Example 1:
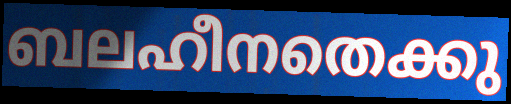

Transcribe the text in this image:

ബലഹീനതെക്കു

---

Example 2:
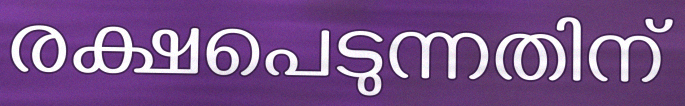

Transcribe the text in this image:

രക്ഷപെടുന്നതിന്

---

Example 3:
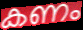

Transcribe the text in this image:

കണം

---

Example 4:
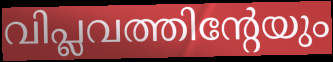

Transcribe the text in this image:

വിപ്ലവത്തിന്റേയും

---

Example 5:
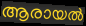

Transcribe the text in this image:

ആരായൽ